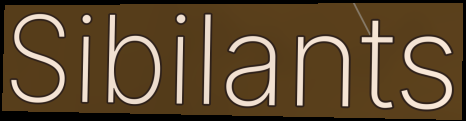
Sibilants